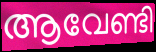
ആവേണ്ടി